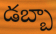
డబ్బా